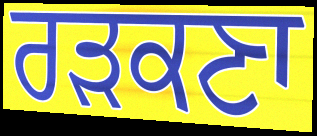
ਰੜਕਣਾ